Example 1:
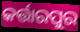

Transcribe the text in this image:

କର୍ତ୍ତାରପୁର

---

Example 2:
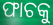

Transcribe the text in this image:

ଫାଚକୁ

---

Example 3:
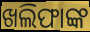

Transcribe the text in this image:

ଖଲିଫାଙ୍କ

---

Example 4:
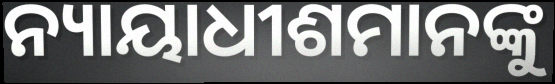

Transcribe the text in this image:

ନ୍ୟାୟାଧୀଶମାନଙ୍କୁ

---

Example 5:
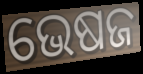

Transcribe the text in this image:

ଭେଷଜ